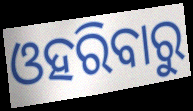
ଓହରିବାରୁ